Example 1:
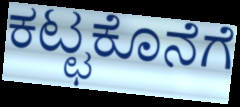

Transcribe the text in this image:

ಕಟ್ಟಕೊನೆಗೆ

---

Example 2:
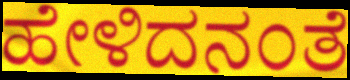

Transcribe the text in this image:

ಹೇಳಿದನಂತೆ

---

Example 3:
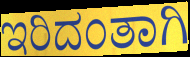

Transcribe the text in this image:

ಇರಿದಂತಾಗಿ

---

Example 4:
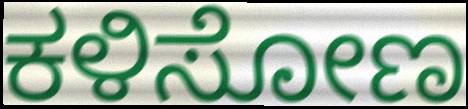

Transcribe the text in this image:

ಕಳಿಸೋಣ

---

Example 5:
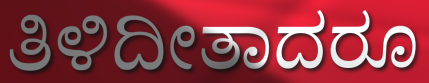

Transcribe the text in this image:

ತಿಳಿದೀತಾದರೂ